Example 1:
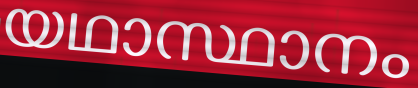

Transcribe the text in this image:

യഥാസ്ഥാനം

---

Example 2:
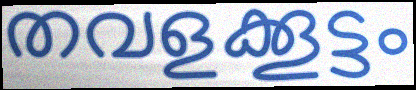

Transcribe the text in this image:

തവളക്കൂട്ടം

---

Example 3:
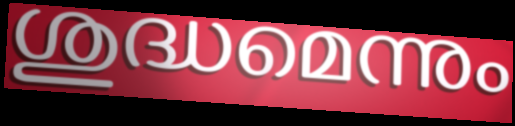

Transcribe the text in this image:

ശുദ്ധമെന്നും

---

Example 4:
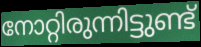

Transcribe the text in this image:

നോറ്റിരുന്നിട്ടുണ്ട്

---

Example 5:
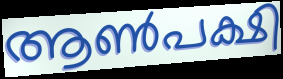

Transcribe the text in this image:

ആൺപക്ഷി